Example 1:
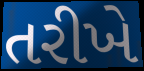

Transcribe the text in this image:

તરીખે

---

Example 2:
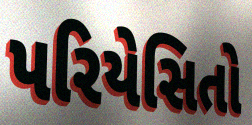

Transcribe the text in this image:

પરિયેસિતો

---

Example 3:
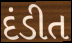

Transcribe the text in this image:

દંડીત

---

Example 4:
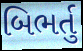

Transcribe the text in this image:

બિભર્તુ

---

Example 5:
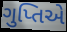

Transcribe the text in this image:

ગુપ્તિએ